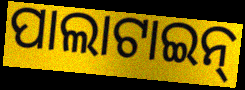
ପାଲାଟାଇନ୍